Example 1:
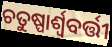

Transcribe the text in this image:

ଚତୁଷ୍ପାର୍ଶ୍ୱବର୍ତ୍ତୀ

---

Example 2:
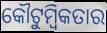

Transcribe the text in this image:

କୌଟୁମ୍ବିକତାର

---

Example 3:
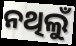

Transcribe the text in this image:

ନଥିଲୁଁ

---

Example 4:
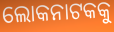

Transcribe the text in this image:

ଲୋକନାଟକକୁ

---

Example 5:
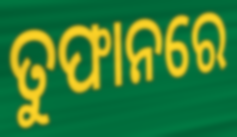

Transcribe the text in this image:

ତୁଫାନରେ